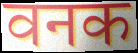
वनक